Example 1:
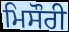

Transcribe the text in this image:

ਮਿਸੌਰੀ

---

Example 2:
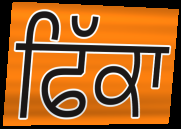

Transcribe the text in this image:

ਫਿੱਕਾ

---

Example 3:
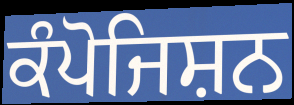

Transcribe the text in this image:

ਕੰਪੋਜਿਸ਼ਨ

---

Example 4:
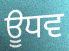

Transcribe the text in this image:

ਊਧਵ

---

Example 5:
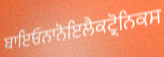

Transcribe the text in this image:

ਬਾਇਓਨਾਨੋਇਲੈਕਟ੍ਰੋਨਿਕਸ